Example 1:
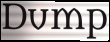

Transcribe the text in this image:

Dump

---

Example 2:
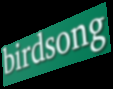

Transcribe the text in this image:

birdsong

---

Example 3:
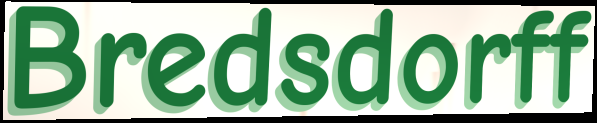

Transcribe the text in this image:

Bredsdorff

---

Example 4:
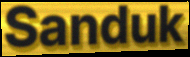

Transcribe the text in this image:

Sanduk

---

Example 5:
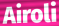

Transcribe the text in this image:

Airoli